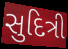
સુદિત્રી